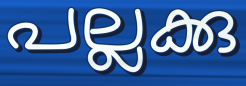
പല്ലക്കു